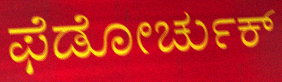
ಫೆಡೋರ್ಚುಕ್